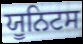
ਯੂਨਿਟਸ